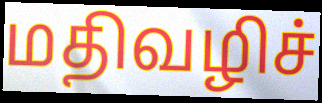
மதிவழிச்